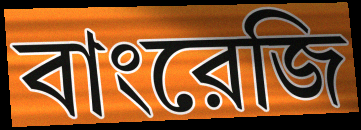
বাংরেজি